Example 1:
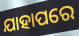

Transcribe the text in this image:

ଯାହାପରେ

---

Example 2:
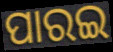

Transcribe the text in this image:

ପାରଇ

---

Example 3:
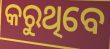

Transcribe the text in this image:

କରୁଥିବେ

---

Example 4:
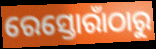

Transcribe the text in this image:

ରେସ୍ତୋରାଁଠାରୁ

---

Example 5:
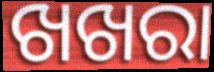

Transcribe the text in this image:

ଖଖରା